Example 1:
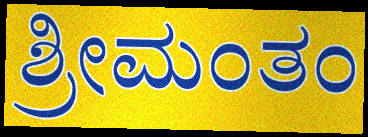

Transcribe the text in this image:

ಶ್ರೀಮಂತಂ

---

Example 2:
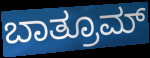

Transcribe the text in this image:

ಬಾತ್ರೂಮ್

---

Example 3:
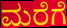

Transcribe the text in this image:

ಮರೆಗೆ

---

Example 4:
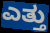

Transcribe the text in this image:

ಎತ್ತು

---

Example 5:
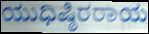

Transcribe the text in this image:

ಯುಧಿಷ್ಠಿರರಾಯ